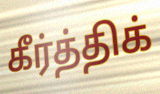
கீர்த்திக்